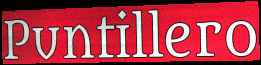
Puntillero